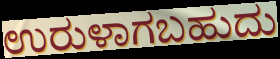
ಉರುಳಾಗಬಹುದು